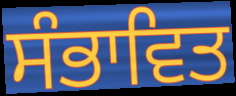
ਸੰਭਾਵਿਤ